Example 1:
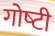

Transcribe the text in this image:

गोष्‍टी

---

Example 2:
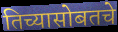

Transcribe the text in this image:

तिच्यासोबतचे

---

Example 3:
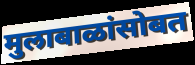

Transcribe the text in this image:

मुलाबाळांसोबत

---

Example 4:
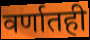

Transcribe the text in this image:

वर्णातही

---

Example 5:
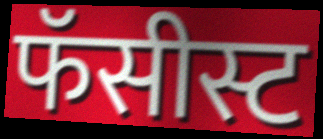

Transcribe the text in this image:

फॅसीस्ट